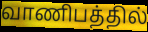
வாணிபத்தில்